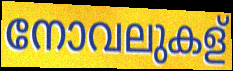
നോവലുകള്